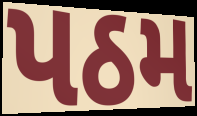
પઠમ